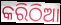
କରିଠିଆ